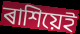
ৰাশিয়েই